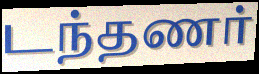
டந்தணர்